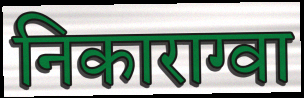
निकाराग्वा